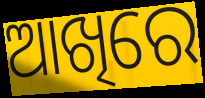
ଆଖିରେ